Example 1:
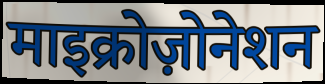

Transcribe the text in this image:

माइक्रोज़ोनेशन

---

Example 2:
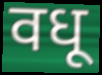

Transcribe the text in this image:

वधू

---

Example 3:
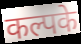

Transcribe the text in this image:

कल्पके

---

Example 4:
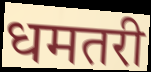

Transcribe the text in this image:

धमतरी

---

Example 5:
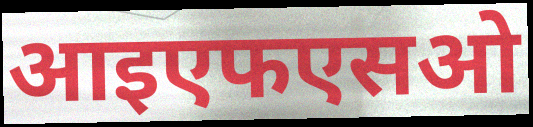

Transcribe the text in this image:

आइएफएसओ